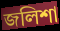
জলিশা